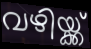
വഴിയ്ക്ക്